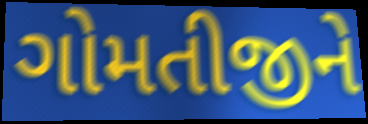
ગોમતીજીને